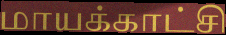
மாயக்காட்சி